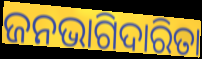
ଜନଭାଗିଦାରିତା